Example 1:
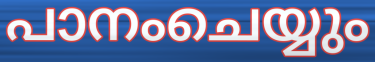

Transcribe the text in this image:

പാനംചെയ്യും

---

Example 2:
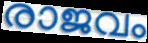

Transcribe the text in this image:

രാജവം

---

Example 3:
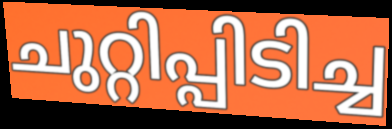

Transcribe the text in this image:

ചുറ്റിപ്പിടിച്ച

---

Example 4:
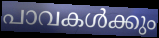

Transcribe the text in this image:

പാവകൾക്കും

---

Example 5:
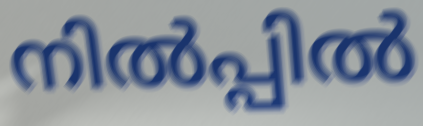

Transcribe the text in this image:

നിൽപ്പിൽ